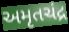
અમૃતચંદ્ર